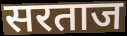
सरताज